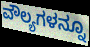
ವೌಲ್ಯಗಳನ್ನೂ